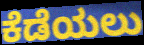
ಕೆಡೆಯಲು